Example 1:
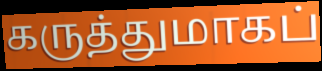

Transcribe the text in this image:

கருத்துமாகப்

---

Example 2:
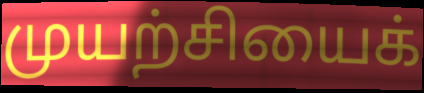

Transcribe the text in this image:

முயற்சியைக்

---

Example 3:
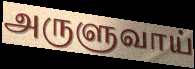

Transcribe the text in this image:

அருளுவாய்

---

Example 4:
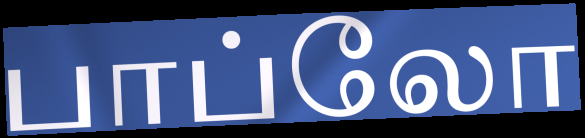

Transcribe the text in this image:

பாப்லோ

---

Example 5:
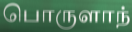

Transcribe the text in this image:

பொருளாந்